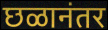
छळानंतर